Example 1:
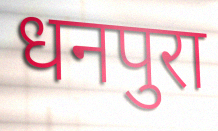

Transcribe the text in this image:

धनपुरा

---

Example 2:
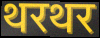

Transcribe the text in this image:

थरथर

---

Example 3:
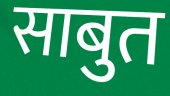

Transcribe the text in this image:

साबुत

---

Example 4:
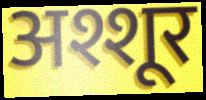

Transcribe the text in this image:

अश्शूर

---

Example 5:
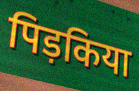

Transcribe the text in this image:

पिड़किया